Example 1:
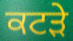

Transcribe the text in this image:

ਕਟੜੇ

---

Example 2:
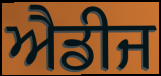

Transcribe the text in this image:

ਐਡੀਜ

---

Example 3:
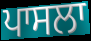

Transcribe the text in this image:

ਪਾਸਲਾ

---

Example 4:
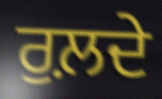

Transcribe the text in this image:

ਰੁਲ਼ਦੇ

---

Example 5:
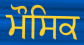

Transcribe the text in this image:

ਮੌਸਿਕ